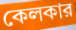
কেলকার